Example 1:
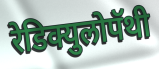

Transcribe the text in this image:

रेडिक्युलोपॅथी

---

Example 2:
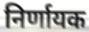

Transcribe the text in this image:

निर्णायक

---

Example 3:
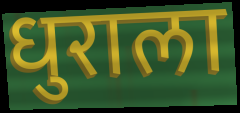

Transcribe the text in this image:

धुराला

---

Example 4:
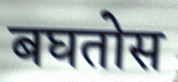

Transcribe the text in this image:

बघतोस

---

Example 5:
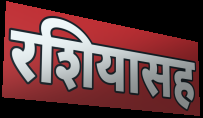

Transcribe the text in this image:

रशियासह